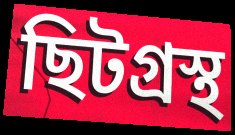
ছিটগ্রস্থ